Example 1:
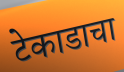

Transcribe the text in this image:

टेकाडाचा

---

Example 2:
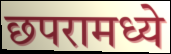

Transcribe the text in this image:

छपरामध्ये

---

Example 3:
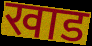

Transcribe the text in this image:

खाड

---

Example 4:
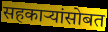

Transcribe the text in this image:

सहकाऱ्यांसोबत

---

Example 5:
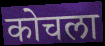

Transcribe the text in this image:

कोचला